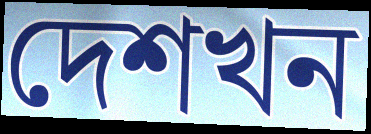
দেশখন